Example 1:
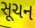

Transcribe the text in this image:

સૂચન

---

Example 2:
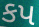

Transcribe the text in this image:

કપ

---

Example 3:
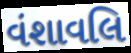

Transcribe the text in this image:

વંશાવલિ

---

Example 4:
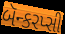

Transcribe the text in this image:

બૅન્કરપ્સી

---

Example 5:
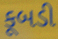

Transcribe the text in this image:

કૂબડી